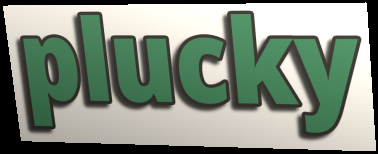
plucky